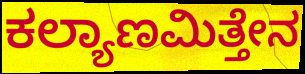
ಕಲ್ಯಾಣಮಿತ್ತೇನ